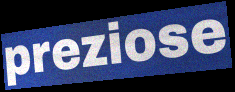
preziose